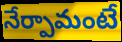
నేర్పామంటే